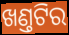
ଖଣ୍ତଟିର